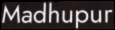
Madhupur